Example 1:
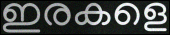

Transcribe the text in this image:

ഇരകളെ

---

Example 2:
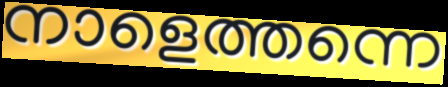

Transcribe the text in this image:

നാളെത്തന്നെ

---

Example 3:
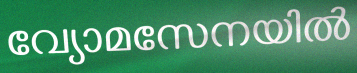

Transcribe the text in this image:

വ്യോമസേനയിൽ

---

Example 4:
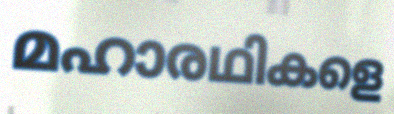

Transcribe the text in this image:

മഹാരഥികളെ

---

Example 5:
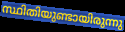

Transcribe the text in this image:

സ്ഥിതിയുണ്ടായിരുന്നു